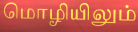
மொழியிலும்